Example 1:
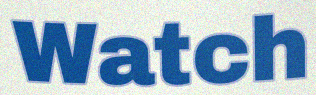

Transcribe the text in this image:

Watch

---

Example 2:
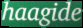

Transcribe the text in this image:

haagide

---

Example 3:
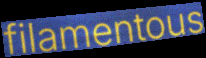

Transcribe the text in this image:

filamentous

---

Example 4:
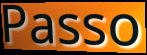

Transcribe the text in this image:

Passo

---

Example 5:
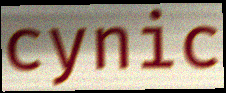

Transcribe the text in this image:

cynic